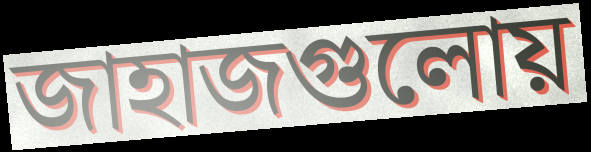
জাহাজগুলোয়